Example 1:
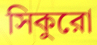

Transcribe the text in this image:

সিকুরো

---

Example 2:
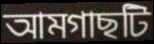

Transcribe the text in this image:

আমগাছটি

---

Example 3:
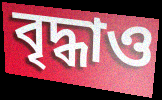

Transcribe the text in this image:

বৃদ্ধাও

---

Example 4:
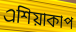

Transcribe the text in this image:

এশিয়াকাপ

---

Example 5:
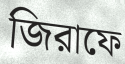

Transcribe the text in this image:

জিরাফে